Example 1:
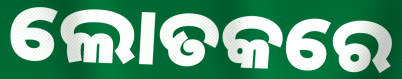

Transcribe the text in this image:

ଲୋତକରେ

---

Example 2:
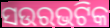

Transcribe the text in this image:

ସଉରଭଟିକ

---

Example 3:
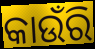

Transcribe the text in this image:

କାଉଁରି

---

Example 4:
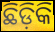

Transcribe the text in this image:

ଛିଡ଼ିକି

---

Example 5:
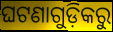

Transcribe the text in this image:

ଘଟଣାଗୁଡ଼ିକରୁ